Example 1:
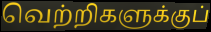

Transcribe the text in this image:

வெற்றிகளுக்குப்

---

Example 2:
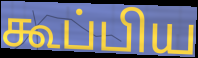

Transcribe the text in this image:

கூப்பிய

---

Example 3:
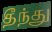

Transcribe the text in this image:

தீந்து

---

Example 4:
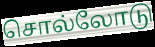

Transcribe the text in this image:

சொல்லோடு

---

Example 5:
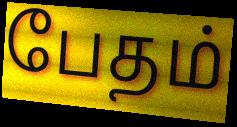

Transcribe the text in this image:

பேதம்